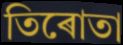
তিৰোতা